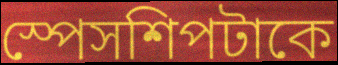
স্পেসশিপটাকে